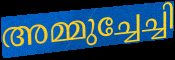
അമ്മുച്ചേച്ചി